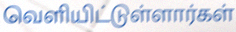
வெளியிட்டுள்ளார்கள்